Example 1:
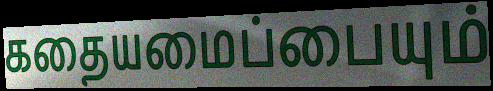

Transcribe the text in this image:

கதையமைப்பையும்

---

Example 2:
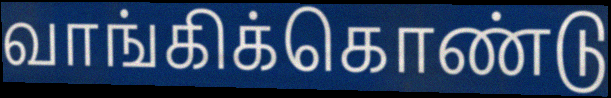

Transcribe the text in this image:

வாங்கிக்கொண்டு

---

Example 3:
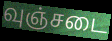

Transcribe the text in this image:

வுஞ்சடை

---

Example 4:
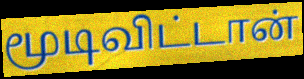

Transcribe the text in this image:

மூடிவிட்டான்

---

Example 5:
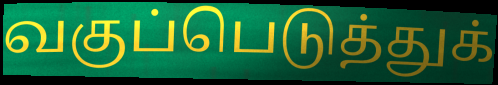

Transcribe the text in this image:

வகுப்பெடுத்துக்